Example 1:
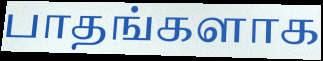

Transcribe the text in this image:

பாதங்களாக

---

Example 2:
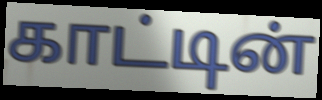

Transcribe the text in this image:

காட்டின்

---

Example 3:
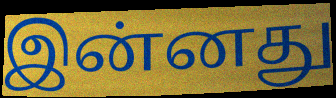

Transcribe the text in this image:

இன்னது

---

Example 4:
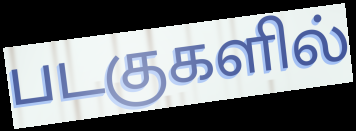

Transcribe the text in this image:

படகுகளில்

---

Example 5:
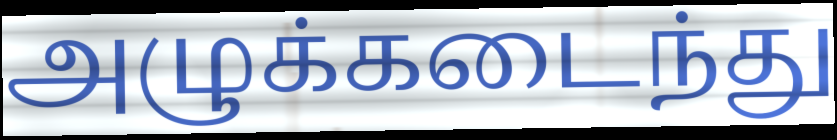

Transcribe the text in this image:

அழுக்கடைந்து